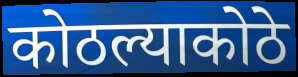
कोठल्याकोठे